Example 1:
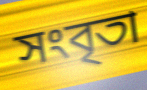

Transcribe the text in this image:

সংবৃতা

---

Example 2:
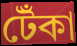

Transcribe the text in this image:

টেঁকা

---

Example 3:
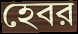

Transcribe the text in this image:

হেবর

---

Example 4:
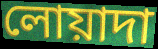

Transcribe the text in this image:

লোয়াদা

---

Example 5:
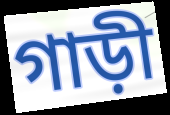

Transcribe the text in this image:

গাড়ী